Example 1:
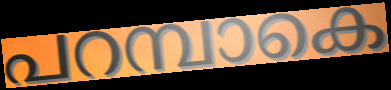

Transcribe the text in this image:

പറമ്പാകെ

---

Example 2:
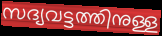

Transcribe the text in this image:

സദ്യവട്ടത്തിനുള്ള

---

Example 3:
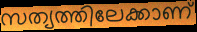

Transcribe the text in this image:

സത്യത്തിലേക്കാണ്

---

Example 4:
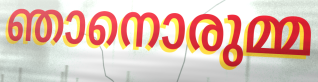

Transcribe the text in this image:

ഞാനൊരുമ്മ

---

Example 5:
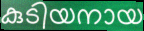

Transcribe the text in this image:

കുടിയനായ